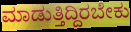
ಮಾಡುತ್ತಿದ್ದಿರಬೇಕು